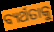
ବ୍ୟର୍ଥତାକୁ